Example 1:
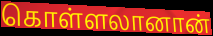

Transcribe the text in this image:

கொள்ளலானான்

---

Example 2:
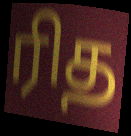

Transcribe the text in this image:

ரித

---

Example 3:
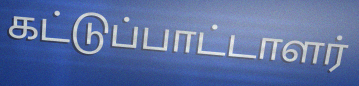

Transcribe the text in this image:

கட்டுப்பாட்டாளர்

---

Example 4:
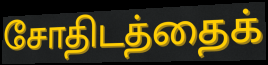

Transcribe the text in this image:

சோதிடத்தைக்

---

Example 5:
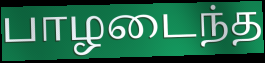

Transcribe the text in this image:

பாழடைந்த